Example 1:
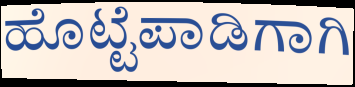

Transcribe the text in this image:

ಹೊಟ್ಟೆಪಾಡಿಗಾಗಿ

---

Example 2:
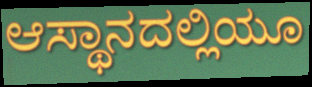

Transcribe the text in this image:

ಆಸ್ಥಾನದಲ್ಲಿಯೂ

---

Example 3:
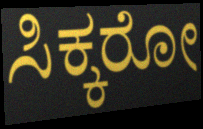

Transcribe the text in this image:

ಸಿಕ್ಕರೋ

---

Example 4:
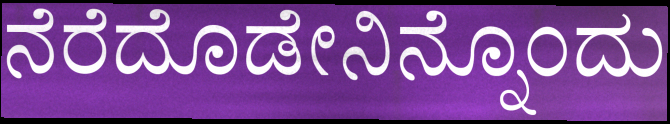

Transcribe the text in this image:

ನೆರೆದೊಡೇನಿನ್ನೊಂದು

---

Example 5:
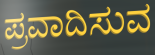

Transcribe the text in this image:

ಪ್ರವಾದಿಸುವ